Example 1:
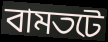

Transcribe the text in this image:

বামতটে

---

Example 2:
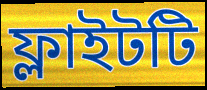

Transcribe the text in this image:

ফ্লাইটটি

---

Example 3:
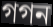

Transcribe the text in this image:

গগন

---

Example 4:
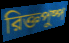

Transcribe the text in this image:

রিক্তপুষ্প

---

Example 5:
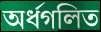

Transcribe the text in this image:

অর্ধগলিত